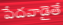
పేదవాడైతే